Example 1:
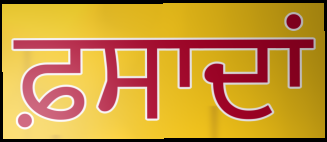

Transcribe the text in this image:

ਫ਼ਸਾਦਾਂ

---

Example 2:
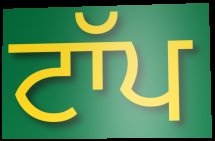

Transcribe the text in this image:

ਟਾੱਪ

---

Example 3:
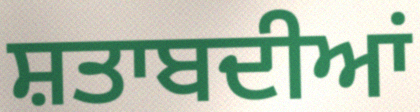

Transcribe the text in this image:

ਸ਼ਤਾਬਦੀਆਂ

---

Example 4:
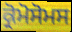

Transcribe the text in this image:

ਕ੍ਰੋਮੋਸੋਮਸ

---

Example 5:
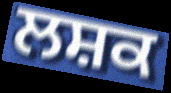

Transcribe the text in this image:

ਲਸ਼ਕ